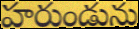
హరుండును